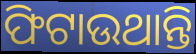
ଫିଟାଉଥାନ୍ତି